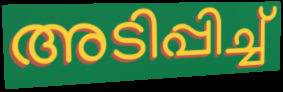
അടിപ്പിച്ച്